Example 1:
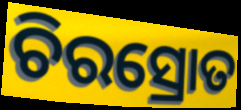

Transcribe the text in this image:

ଚିରସ୍ରୋତ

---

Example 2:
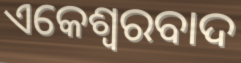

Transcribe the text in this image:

ଏକେଶ୍ୱରବାଦ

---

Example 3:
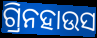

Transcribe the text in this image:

ଗ୍ରିନହାଉସ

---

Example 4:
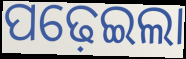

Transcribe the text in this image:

ପଢ଼େଇଲା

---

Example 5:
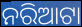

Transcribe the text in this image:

ନରିଆଟା